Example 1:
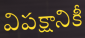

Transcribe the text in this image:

విపక్షానికీ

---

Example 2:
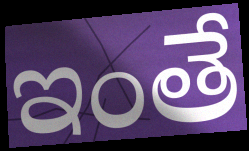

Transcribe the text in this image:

ఇంతే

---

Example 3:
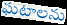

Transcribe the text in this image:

ఘటాలను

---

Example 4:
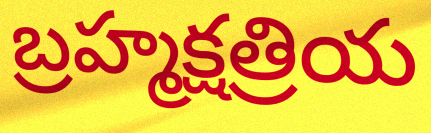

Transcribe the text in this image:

బ్రహ్మక్షత్రియ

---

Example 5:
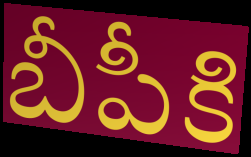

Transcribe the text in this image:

బీపీకి